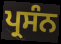
ਪ੍ਰਸੰਨ